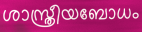
ശാസ്ത്രീയബോധം